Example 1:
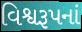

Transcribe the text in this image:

વિશ્વરૂપનાં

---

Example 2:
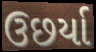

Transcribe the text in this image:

ઉછર્યા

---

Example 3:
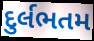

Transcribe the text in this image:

દુર્લભતમ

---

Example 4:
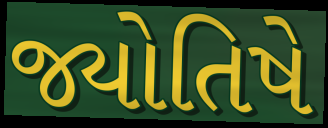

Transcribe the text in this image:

જ્યોતિષે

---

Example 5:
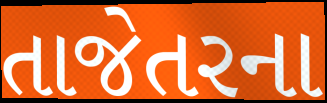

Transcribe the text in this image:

તાજેતરના